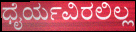
ಧೈರ್ಯವಿರಲಿಲ್ಲ